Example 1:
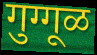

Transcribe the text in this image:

गुग्गूळ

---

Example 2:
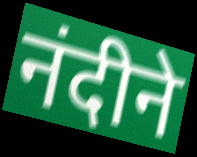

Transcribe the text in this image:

नंदीने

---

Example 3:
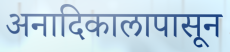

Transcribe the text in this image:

अनादिकालापासून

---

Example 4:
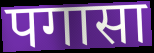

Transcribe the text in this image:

पगासा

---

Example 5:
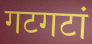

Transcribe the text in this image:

गटगटां